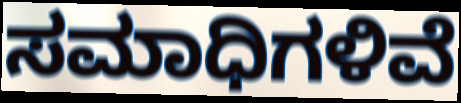
ಸಮಾಧಿಗಳಿವೆ